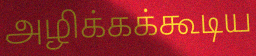
அழிக்கக்கூடிய